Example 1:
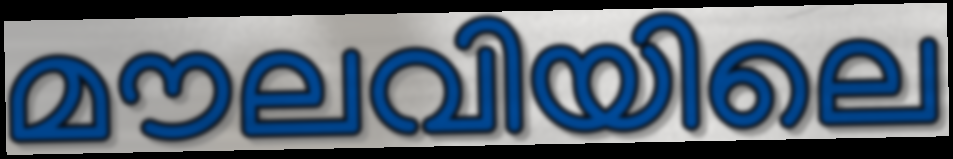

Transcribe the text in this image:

മൗലവിയിലെ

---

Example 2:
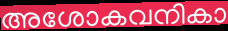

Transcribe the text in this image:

അശോകവനികാ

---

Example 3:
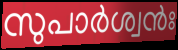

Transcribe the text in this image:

സുപാർശ്വൻഃ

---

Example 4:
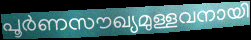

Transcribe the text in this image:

പൂർണസൗഖ്യമുള്ളവനായി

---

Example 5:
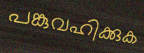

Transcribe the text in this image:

പങ്കുവഹിക്കുക